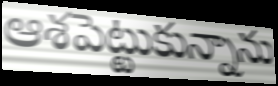
ఆశపెట్టుకున్నాను